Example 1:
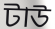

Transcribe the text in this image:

টাউ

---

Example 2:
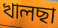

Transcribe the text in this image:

খালছা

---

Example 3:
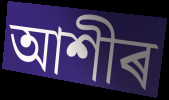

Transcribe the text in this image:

আশীৰ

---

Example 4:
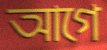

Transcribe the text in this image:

আগে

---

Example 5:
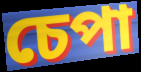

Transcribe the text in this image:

চেপা